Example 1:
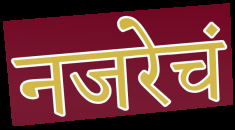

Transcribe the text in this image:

नजरेचं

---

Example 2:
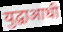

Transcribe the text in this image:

युद्धाआधी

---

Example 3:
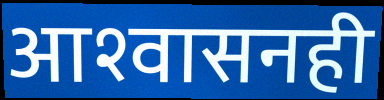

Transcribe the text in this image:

आश्वासनही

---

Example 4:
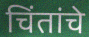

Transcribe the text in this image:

चिंतांचे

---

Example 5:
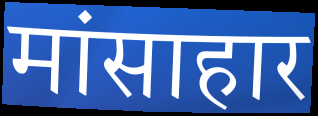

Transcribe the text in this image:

मांसाहार